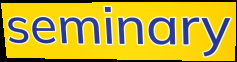
seminary